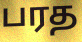
பரத